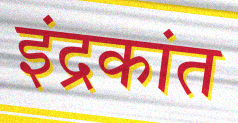
इंद्रकांत